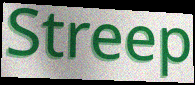
Streep